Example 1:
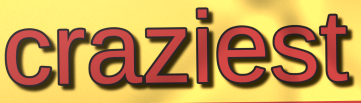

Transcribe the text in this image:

craziest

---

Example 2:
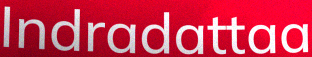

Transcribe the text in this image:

Indradattaa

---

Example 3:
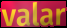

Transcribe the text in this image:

valar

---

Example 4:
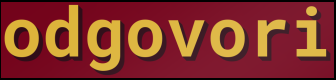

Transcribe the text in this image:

odgovori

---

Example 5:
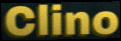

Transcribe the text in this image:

Clino